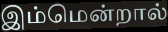
இம்மென்றால்